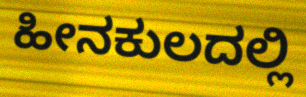
ಹೀನಕುಲದಲ್ಲಿ